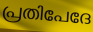
പ്രതിപേദേ